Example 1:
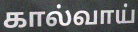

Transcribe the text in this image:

கால்வாய்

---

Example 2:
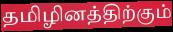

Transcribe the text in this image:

தமிழினத்திற்கும்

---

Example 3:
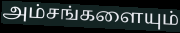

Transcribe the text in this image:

அம்சங்களையும்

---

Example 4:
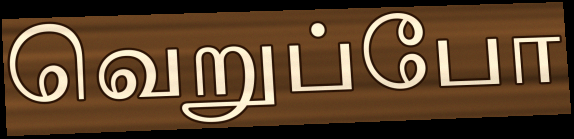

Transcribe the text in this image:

வெறுப்போ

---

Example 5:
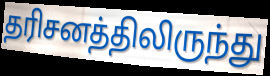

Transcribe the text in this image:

தரிசனத்திலிருந்து